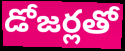
డోజర్లతో